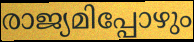
രാജ്യമിപ്പോഴും